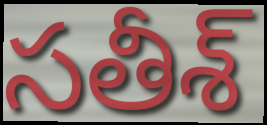
సతీశ్